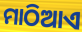
ମାଠିଆଏ